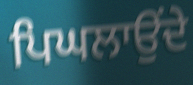
ਪਿਘਲਾਉਂਦੇ